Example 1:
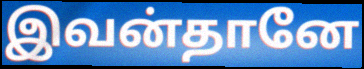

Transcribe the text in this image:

இவன்தானே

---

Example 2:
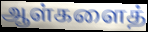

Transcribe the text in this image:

ஆள்களைத்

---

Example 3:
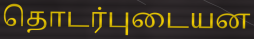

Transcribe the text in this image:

தொடர்புடையன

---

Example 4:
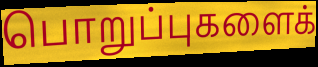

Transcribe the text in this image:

பொறுப்புகளைக்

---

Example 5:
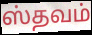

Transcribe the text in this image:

ஸ்தவம்